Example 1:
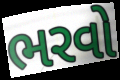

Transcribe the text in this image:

ભરવો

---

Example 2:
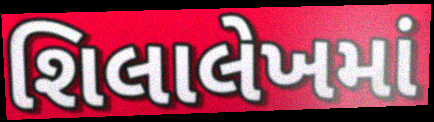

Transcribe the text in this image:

શિલાલેખમાં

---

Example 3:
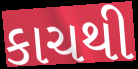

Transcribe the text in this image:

કાચથી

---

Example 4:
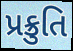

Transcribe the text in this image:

પ્રક્રુતિ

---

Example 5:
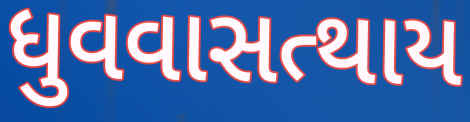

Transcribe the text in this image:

ધુવવાસત્થાય